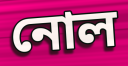
নোল